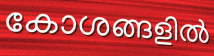
കോശങ്ങളിൽ